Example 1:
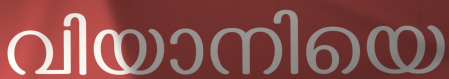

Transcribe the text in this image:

വിയാനിയെ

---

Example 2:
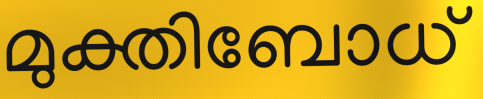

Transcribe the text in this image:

മുക്തിബോധ്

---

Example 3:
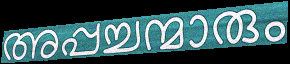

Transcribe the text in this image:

അപ്പച്ചന്മാരും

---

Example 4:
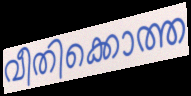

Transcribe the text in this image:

വീതിക്കൊത്ത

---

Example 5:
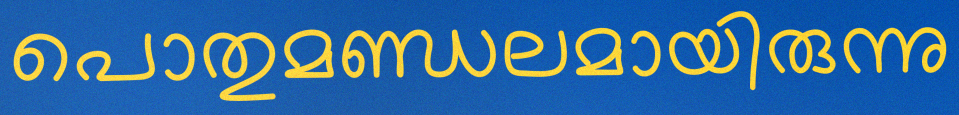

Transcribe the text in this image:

പൊതുമണ്ഡലമായിരുന്നു